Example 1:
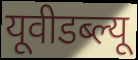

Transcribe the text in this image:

यूवीडब्ल्यू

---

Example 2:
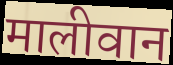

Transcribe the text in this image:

मालीवान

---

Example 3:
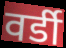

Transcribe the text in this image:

वर्डी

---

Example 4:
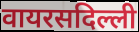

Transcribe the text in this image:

वायरसदिल्ली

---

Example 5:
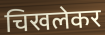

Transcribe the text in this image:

चिखलेकर